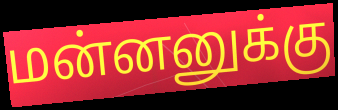
மன்னனுக்கு